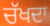
ਚੱਖਦਾ